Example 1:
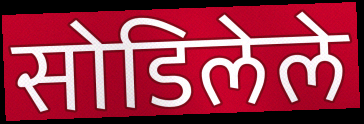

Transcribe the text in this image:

सोडिलेले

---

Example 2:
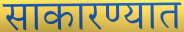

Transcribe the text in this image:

साकारण्यात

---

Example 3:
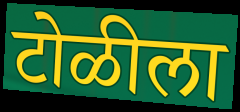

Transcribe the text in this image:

टोळीला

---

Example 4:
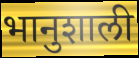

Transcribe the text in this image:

भानुशाली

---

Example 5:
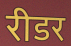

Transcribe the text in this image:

रीडर